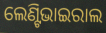
ଲେଣ୍ଟିଭାଇରାଲ